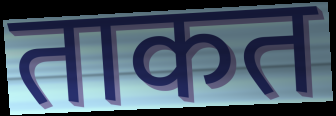
ताकत